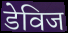
डेविज